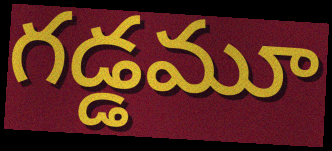
గడ్డమూ